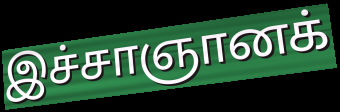
இச்சாஞானக்